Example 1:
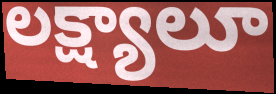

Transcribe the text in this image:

లక్ష్యాలూ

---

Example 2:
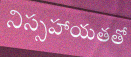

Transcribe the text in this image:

నిస్సహాయతతో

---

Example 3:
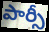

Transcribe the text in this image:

పార్సీ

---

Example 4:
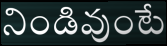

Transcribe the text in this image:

నిండివుంటే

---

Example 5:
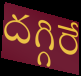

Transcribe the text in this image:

దగ్గిరే